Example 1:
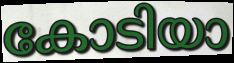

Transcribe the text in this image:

കോടിയാ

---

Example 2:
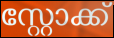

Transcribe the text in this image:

സ്റ്റോക്ക്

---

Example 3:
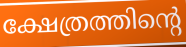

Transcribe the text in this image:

ക്ഷേത്രത്തിന്റെ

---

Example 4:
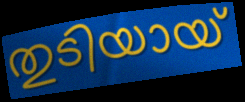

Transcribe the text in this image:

തുടിയായ്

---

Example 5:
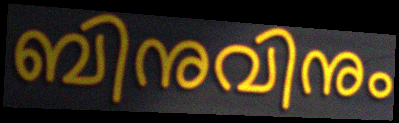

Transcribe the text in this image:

ബിനുവിനും